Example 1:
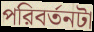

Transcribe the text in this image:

পরিবর্তনটা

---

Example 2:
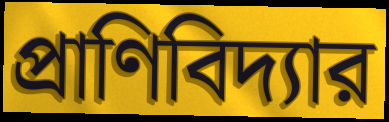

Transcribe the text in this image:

প্রাণিবিদ্যার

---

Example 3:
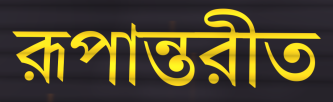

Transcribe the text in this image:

রূপান্তরীত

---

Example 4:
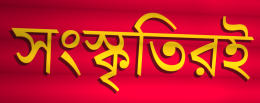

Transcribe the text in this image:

সংস্কৃতিরই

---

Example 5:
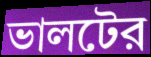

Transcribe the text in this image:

ভালটের